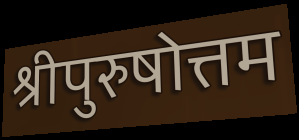
श्रीपुरुषोत्तम